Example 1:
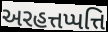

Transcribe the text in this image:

અરહત્તપ્પત્તિ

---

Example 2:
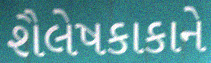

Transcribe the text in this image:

શૈલેષકાકાને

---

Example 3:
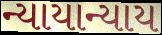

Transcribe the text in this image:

ન્યાયાન્યાય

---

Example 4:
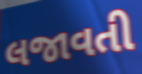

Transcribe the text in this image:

લજાવતી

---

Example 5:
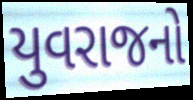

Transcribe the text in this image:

યુવરાજનો